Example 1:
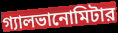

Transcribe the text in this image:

গ্যালভানোমিটার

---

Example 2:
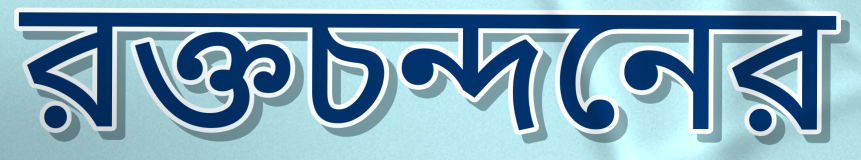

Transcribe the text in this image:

রক্তচন্দনের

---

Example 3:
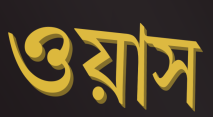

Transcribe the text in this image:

ওয়াস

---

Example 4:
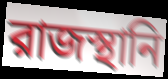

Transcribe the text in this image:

রাজস্থানি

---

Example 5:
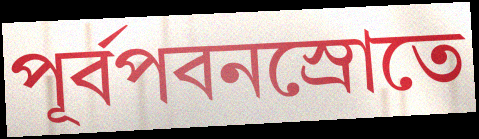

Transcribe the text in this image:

পূর্বপবনস্রোতে